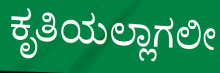
ಕೃತಿಯಲ್ಲಾಗಲೀ